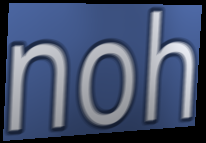
noh